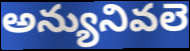
అన్యునివలె